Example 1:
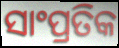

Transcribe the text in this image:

ସାଂପ୍ରତିକ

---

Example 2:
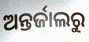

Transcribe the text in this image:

ଅନ୍ତର୍ଜାଲରୁ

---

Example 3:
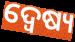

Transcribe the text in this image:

ଦ୍ୱେଷ୍ୟ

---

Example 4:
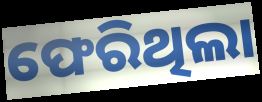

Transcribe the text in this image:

ଫେରିଥିଲା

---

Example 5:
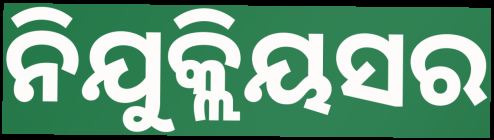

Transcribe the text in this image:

ନିଯୁକ୍ଲିୟସର